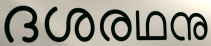
ദശരഥനു